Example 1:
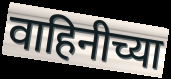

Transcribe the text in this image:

वाहिनीच्या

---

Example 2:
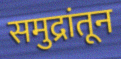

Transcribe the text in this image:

समुद्रांतून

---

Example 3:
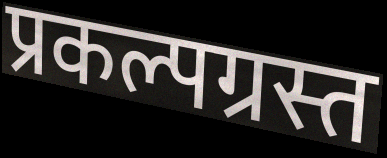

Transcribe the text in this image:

प्रकल्पग्रस्त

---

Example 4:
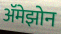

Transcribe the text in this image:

ॲमेझोन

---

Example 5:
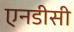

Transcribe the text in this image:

एनडीसी